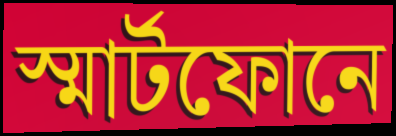
স্মার্টফোনে